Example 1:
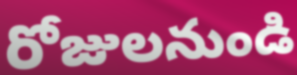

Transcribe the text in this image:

రోజులనుండి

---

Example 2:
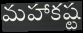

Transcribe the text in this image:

మహాకష్ట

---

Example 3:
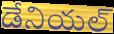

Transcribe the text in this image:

డేనియల్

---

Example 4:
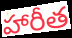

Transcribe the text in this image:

హారీత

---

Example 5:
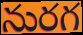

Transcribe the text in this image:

నురగ